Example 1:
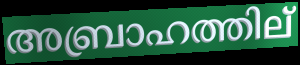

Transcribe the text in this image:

അബ്രാഹത്തില്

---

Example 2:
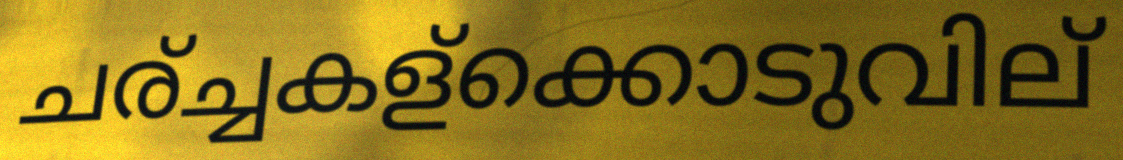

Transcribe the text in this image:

ചര്ച്ചകള്ക്കൊടുവില്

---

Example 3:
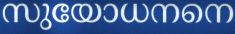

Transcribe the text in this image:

സുയോധനനെ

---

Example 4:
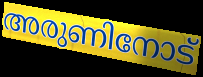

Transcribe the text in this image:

അരുണിനോട്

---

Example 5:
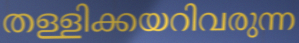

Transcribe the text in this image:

തള്ളിക്കയറിവരുന്ന